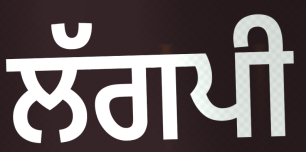
ਲੱਗਪੀ